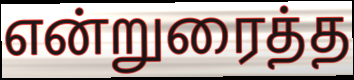
என்றுரைத்த